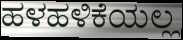
ಹಳಹಳಿಕೆಯಲ್ಲ